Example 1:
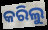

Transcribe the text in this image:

କରିଲୁ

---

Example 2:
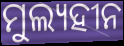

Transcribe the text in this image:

ମୁଲ୍ୟହୀନ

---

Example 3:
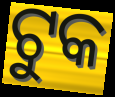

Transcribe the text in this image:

ଟୁକ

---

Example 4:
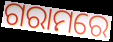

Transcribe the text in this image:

ଗରାମରେ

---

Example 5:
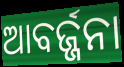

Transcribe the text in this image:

ଆବର୍ଜ୍ଜନା